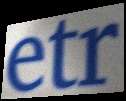
etr